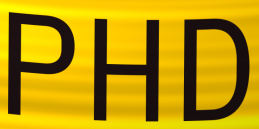
PHD